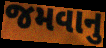
જમવાનુ